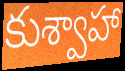
కుశ్వాహా